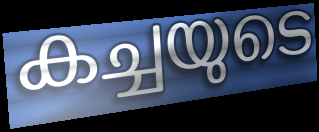
കച്ചയുടെ